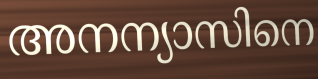
അനന്യാസിനെ